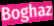
Boghaz